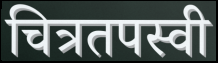
चित्रतपस्वी